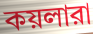
কয়লারা